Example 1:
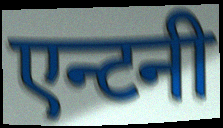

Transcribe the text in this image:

एन्टनी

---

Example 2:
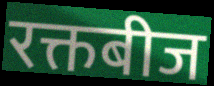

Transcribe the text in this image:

रक्तबीज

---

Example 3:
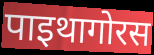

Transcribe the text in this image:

पाइथागोरस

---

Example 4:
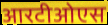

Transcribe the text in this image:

आरटीओएस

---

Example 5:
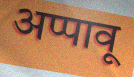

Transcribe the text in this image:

अप्पावू